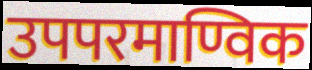
उपपरमाण्विक